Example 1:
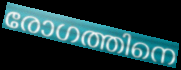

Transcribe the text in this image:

രോഗത്തിനെ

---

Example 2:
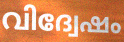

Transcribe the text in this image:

വിദ്വേഷം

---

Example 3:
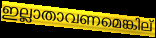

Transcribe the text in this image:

ഇല്ലാതാവണമെങ്കില്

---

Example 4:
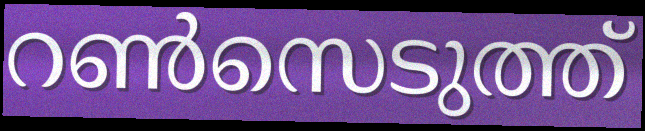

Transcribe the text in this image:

റൺസെടുത്ത്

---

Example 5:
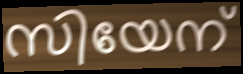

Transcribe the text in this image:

സിയേന്